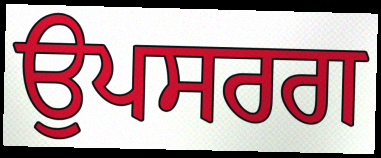
ਉਪਸਰਗ